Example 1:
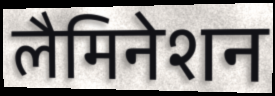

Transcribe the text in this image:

लैमिनेशन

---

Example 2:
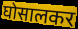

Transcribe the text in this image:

घोसालकर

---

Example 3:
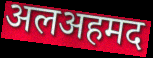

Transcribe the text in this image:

अलअहमद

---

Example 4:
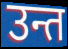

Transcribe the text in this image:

उन्त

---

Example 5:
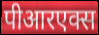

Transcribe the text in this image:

पीआरएक्स